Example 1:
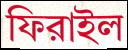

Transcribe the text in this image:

ফিরাইল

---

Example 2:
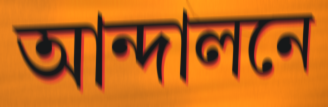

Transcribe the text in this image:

আন্দালনে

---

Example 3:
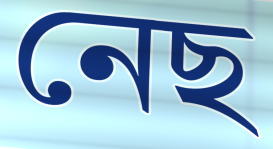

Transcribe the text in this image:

নেছ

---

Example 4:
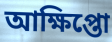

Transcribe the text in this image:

আক্ষিপ্তো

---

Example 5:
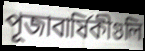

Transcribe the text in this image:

পূজাবার্ষিকীগুলি